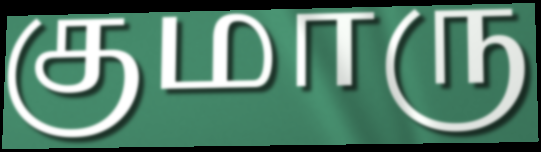
குமாரு